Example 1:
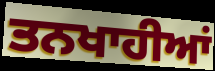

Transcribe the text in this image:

ਤਨਖਾਹੀਆਂ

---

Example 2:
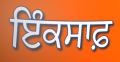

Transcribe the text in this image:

ਇੰਕਸਾਫ਼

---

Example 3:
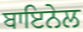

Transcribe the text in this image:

ਬਾਇਨੇਲ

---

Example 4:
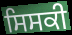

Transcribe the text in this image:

ਸਿਸਕੀ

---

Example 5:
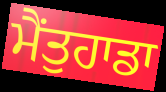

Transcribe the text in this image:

ਮੈਂਤੁਹਾਡਾ